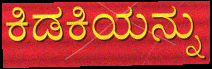
ಕಿಡಕಿಯನ್ನು